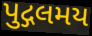
પુદ્ગલમય